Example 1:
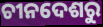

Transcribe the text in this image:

ଚୀନଦେଶରୁ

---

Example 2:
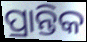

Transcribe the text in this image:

ପ୍ରାନ୍ତିକ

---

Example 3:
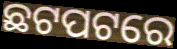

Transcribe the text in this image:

ଛଟପଟରେ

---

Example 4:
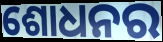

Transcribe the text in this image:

ଶୋଧନର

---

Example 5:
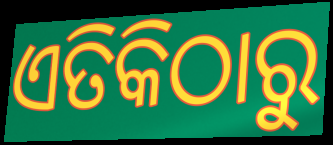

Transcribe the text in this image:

ଏତିକିଠାରୁ